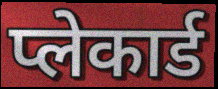
प्लेकार्ड